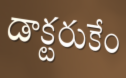
డాక్టరుకేం